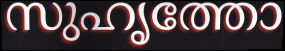
സുഹൃത്തോ